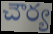
చౌర్య